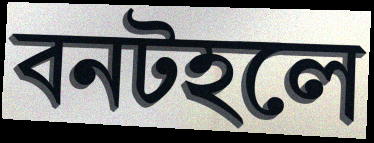
বনটহলে